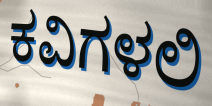
ಕವಿಗಳಲಿ